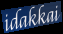
idakkai